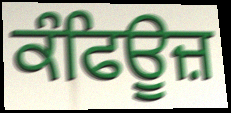
ਕੰਫਿਊਜ਼